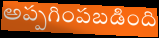
అప్పగింపబడింది